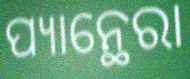
ପ୍ୟାନ୍ଥେରା